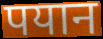
पयान